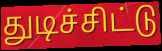
துடிச்சிட்டு